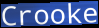
Crooke